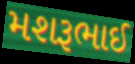
મશરૂભાઈ